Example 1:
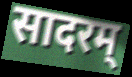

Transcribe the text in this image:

सादरम्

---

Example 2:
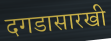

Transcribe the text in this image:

दगडासारखी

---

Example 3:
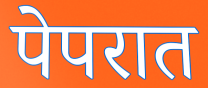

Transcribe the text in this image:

पेपरात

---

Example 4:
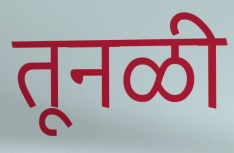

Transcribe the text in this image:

तूनळी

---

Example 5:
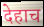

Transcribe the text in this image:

देहाच